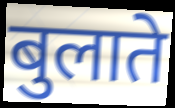
बुलाते